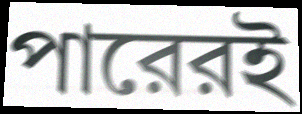
পারেরই